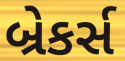
બ્રેકર્સ